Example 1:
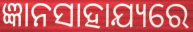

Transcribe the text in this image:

ଜ୍ଞାନସାହାଯ୍ୟରେ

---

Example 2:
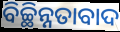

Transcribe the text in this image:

ବିଚ୍ଛିନ୍ନତାବାଦ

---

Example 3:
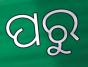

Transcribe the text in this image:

ପରୁ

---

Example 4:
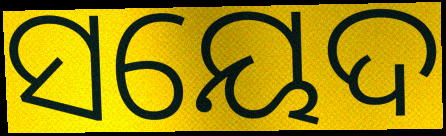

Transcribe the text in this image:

ସୟେଦ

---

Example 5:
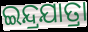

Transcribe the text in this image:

ଇନ୍ଦ୍ରଯାତ୍ରା